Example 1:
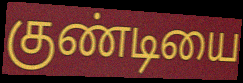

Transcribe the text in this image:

குண்டியை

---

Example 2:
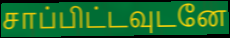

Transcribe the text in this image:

சாப்பிட்டவுடனே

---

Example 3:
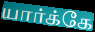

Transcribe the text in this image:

யார்க்கே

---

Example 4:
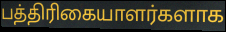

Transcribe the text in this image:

பத்திரிகையாளர்களாக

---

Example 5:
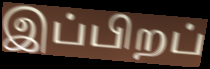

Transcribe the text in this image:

இப்பிறப்